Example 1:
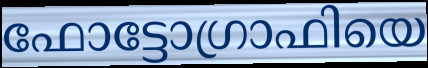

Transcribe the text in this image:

ഫോട്ടോഗ്രാഫിയെ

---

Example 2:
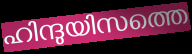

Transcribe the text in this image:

ഹിന്ദുയിസത്തെ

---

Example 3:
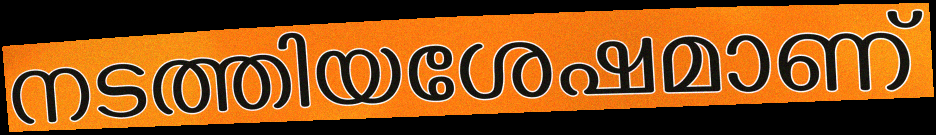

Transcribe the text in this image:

നടത്തിയശേഷമാണ്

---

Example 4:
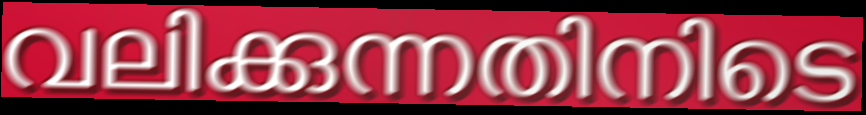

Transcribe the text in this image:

വലിക്കുന്നതിനിടെ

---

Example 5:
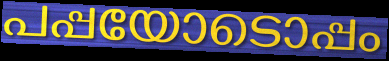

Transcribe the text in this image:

പപ്പയോടൊപ്പം